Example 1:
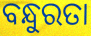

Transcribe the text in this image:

ବନ୍ଧୁରତା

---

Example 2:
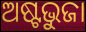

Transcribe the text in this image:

ଅଷ୍ଟଭୁଜା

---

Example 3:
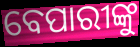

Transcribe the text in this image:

ବେପାରୀଙ୍କୁ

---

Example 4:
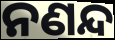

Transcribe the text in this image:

ନଣନ୍ଦ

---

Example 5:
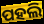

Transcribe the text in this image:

ପହଲି